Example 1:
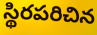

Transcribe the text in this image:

స్థిరపరిచిన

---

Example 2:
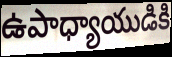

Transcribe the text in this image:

ఉపాధ్యాయుడికి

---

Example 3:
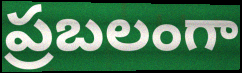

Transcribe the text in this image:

ప్రబలంగా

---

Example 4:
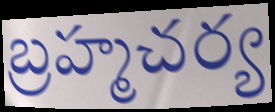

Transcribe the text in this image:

బ్రహ్మచర్య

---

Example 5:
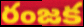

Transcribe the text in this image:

రంజక